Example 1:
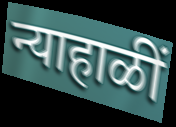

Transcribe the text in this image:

न्याहाळीं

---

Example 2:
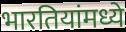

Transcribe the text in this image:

भारतियांमध्ये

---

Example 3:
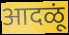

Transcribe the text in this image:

आदळूं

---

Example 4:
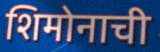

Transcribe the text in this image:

शिमोनाची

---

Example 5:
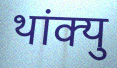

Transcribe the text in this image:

थांक्यु